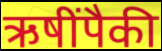
ऋषींपैकी